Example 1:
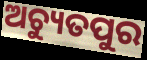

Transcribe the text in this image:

ଅଚ୍ୟୁତପୁର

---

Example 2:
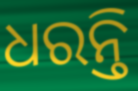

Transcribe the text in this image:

ଧରନ୍ତି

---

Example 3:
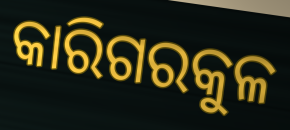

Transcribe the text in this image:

କାରିଗରକୁଳ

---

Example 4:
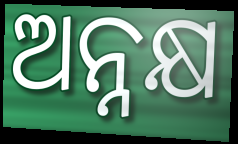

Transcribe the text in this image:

ଅନ୍ନକ୍ଷ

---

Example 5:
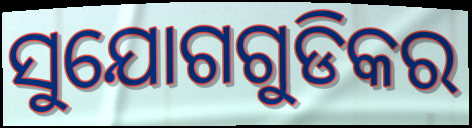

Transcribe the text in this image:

ସୁଯୋଗଗୁଡିକର